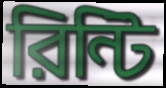
রিন্টি